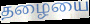
தழையை